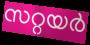
സറ്റയർ